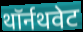
थॉर्नथवेट